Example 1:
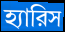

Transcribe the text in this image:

হ্যারিস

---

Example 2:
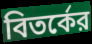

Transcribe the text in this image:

বিতর্কের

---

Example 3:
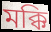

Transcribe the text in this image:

মক্কি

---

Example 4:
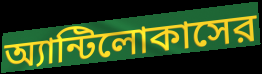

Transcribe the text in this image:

অ্যান্টিলোকাসের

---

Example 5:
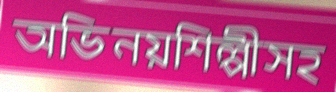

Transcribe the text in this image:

অভিনয়শিল্পীসহ